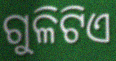
ଗୁଳିଟିଏ